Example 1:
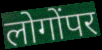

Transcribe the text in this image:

लोगोंपर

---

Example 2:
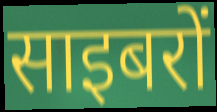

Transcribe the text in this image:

साइबरों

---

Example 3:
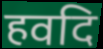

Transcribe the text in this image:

हवदि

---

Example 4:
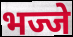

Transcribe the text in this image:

भज्जे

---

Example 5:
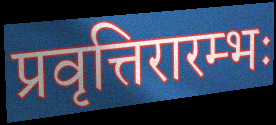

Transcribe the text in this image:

प्रवृत्तिरारम्भः